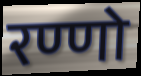
रण्णो